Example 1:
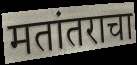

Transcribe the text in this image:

मतांतराचा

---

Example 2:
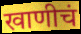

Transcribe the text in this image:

खाणीचं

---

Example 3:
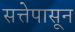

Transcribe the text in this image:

सत्तेपासून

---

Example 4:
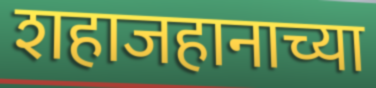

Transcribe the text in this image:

शहाजहानाच्या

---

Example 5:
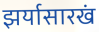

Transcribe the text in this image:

झर्यासारखं